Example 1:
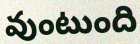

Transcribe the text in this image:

వుంటుంది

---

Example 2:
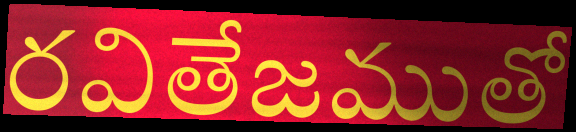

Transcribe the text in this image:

రవితేజముతో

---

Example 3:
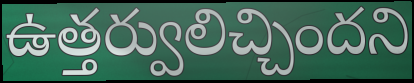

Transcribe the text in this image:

ఉత్తర్వులిచ్చిందని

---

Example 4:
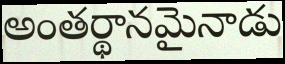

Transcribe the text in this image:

అంతర్థానమైనాడు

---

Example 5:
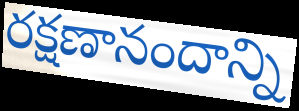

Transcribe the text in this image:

రక్షణానందాన్ని